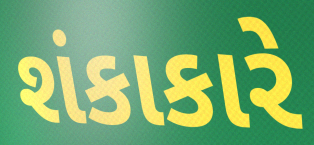
શંકાકારે